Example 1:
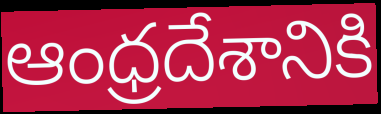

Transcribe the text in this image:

ఆంధ్రదేశానికి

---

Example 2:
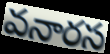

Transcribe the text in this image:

వనారస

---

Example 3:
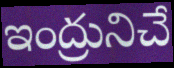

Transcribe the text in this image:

ఇంద్రునిచే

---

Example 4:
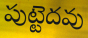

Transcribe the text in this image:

పుట్టెదవు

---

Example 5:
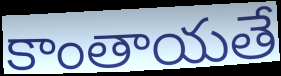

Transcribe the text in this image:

కాంతాయతే